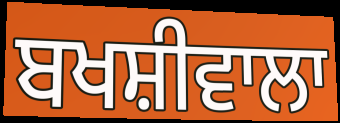
ਬਖਸ਼ੀਵਾਲਾ